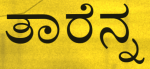
ತಾರೆನ್ನ